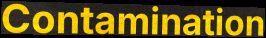
Contamination